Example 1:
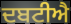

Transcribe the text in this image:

ਦਬਟੀਐ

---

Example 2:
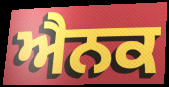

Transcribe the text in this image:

ਐਨਕ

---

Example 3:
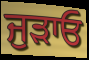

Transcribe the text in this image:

ਜੁੜਾਓ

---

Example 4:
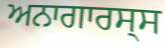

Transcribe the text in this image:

ਅਨਾਗਾਰਸ੍ਸ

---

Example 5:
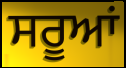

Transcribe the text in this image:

ਸਰੂਆਂ